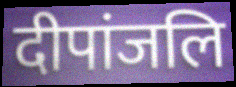
दीपांजलि